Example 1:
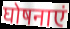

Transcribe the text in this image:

घोषनाएं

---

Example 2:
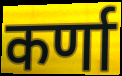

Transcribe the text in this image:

कर्णा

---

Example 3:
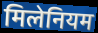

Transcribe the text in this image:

मिलेनियम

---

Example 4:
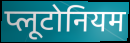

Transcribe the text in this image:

प्लूटोनियम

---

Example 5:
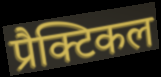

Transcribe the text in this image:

प्रैक्टिकल